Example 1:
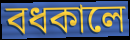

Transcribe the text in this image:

বধকালে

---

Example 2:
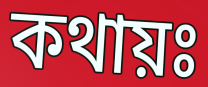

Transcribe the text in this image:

কথায়ঃ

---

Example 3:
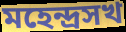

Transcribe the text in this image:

মহেন্দ্রসখ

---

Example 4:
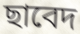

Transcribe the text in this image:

ছাবেদ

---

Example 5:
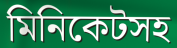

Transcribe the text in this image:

মিনিকেটসহ